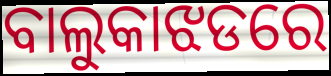
ବାଲୁକାଝଡରେ